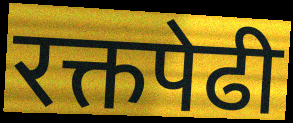
रक्तपेढी